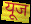
यूज